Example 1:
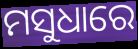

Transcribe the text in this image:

ମସୁଧାରେ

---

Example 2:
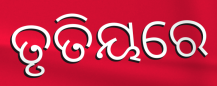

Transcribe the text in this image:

ତୃତିୟରେ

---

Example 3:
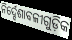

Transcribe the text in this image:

ନିର୍ଦ୍ଦେଶାବଳୀଗୁଡ଼ିକ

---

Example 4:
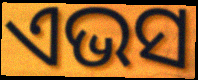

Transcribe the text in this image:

ଏଭସ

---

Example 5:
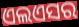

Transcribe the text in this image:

ଏଲଏସର